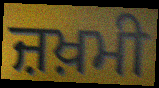
ਜ਼ਖ਼ਮੀ